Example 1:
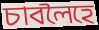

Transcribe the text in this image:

চাবলৈহে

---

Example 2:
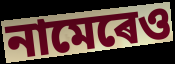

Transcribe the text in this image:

নামেৰেও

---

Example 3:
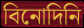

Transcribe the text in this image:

বিনোদিনি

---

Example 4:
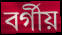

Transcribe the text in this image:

বৰ্গীয়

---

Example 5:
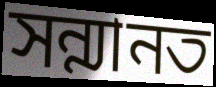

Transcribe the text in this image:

সন্মানত